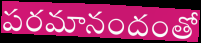
పరమానందంతో